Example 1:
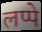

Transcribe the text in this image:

लप्पे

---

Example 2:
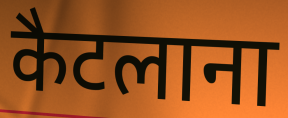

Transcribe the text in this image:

कैटलाना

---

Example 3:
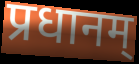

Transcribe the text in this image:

प्रधानम्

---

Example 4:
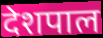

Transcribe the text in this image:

देशपाल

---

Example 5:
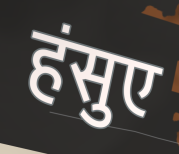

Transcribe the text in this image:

हंसुए